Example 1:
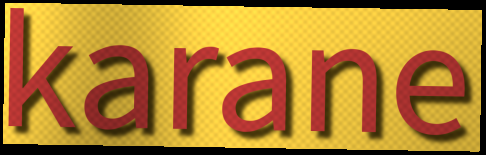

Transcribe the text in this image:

karane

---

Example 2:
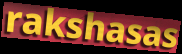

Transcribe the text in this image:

rakshasas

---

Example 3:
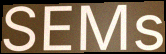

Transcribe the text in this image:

SEMs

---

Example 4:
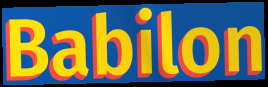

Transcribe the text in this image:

Babilon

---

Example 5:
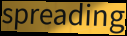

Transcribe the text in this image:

spreading